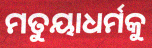
ମତୁୟାଧର୍ମକୁ